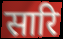
सारि